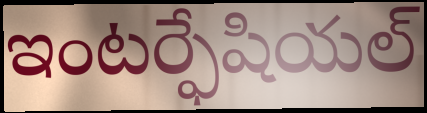
ఇంటర్ఫేషియల్